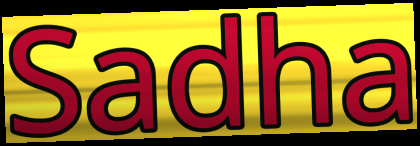
Sadha